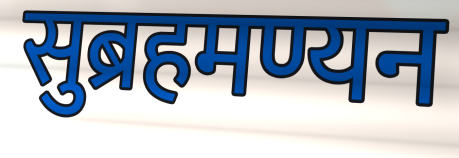
सुब्रहमण्यन